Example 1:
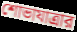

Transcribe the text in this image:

শোভাযাত্রার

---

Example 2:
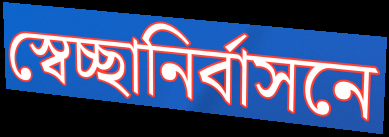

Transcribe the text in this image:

স্বেচ্ছানির্বাসনে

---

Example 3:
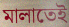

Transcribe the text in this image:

মালাতেই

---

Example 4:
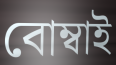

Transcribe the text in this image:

বোম্বাই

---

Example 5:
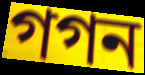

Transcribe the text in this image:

গগন